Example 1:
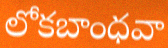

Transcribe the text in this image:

లోకబాంధవా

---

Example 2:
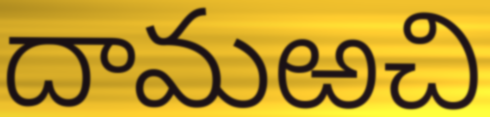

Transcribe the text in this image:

దామఱచి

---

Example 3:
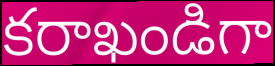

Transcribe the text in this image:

కరాఖండిగా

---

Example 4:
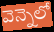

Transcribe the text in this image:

వెన్నెలో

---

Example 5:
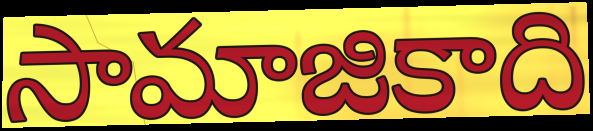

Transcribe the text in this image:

సామాజికాది